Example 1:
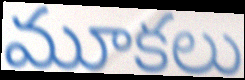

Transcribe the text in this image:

మూకలు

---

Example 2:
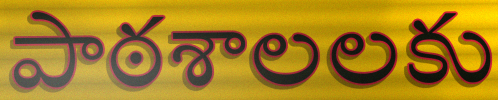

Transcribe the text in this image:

పాఠశాలలకు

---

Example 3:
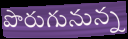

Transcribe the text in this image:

పొరుగునున్న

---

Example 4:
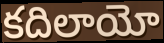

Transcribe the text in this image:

కదిలాయో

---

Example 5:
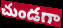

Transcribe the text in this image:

చుండగా